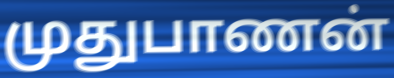
முதுபாணன்